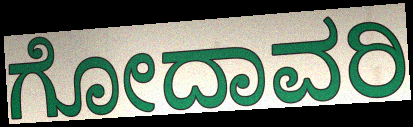
ಗೋದಾವರಿ